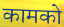
कामको